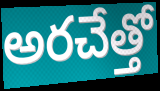
అరచేత్తో